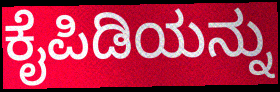
ಕೈಪಿಡಿಯನ್ನು